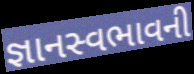
જ્ઞાનસ્વભાવની